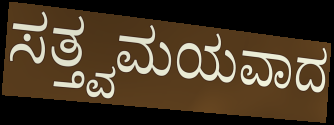
ಸತ್ತ್ವಮಯವಾದ